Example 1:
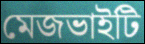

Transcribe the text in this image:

মেজভাইটি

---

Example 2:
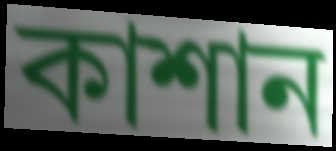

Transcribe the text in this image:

কাশান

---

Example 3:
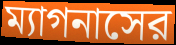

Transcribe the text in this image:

ম্যাগনাসের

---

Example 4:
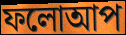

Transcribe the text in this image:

ফলোআপ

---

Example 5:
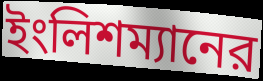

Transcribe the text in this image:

ইংলিশম্যানের